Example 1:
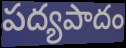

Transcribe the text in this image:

పద్యపాదం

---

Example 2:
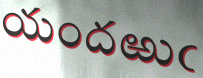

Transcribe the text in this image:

యందఱుఁ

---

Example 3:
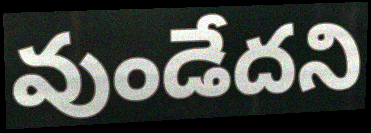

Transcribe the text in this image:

వుండేదని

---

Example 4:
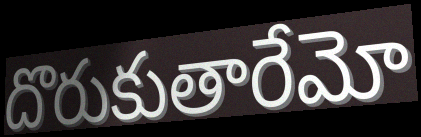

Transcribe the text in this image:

దొరుకుతారేమో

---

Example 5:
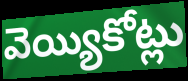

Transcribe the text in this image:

వెయ్యికోట్లు